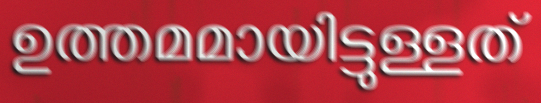
ഉത്തമമായിട്ടുള്ളത്